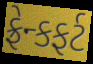
ફ્રેન્કફર્ટ